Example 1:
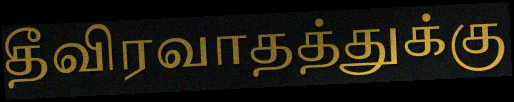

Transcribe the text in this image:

தீவிரவாதத்துக்கு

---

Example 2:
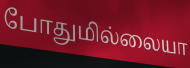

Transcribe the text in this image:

போதுமில்லையா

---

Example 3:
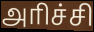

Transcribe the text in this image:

அரிச்சி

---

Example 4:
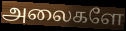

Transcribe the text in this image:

அலைகளே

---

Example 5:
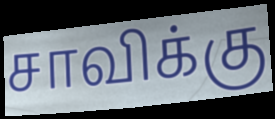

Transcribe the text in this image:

சாவிக்கு